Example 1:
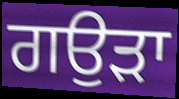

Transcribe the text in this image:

ਗਉੜਾ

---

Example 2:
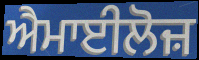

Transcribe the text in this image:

ਐਮਾਈਲੋਜ਼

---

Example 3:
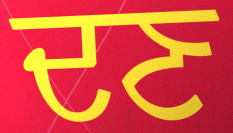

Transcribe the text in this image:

ਦਣ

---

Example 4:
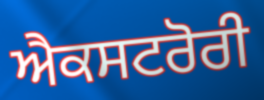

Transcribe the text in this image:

ਐਕਸਟਰੋਰੀ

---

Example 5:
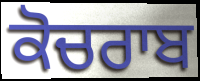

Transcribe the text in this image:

ਕੋਚਰਾਬ